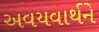
અવયવાર્થને